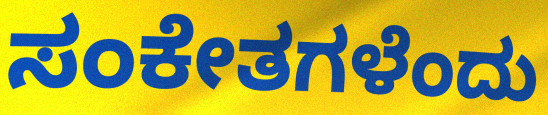
ಸಂಕೇತಗಳೆಂದು